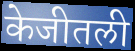
केजीतली